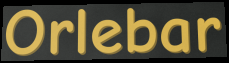
Orlebar